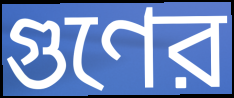
গুণের